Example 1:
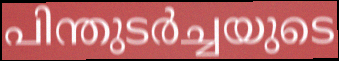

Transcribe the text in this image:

പിന്തുടർച്ചയുടെ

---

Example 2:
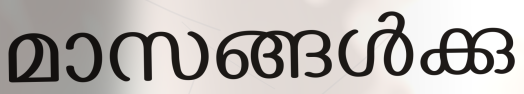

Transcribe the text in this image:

മാസങ്ങൾക്കു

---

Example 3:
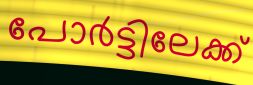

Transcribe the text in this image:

പോർട്ടിലേക്ക്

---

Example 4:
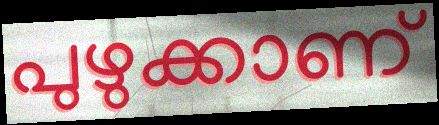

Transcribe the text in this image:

പുഴുക്കാണ്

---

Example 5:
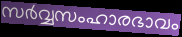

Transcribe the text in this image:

സർവ്വസംഹാരഭാവം